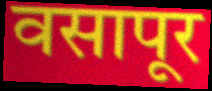
वसापूर